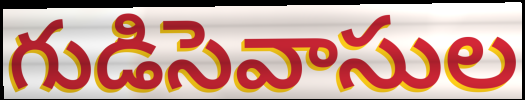
గుడిసెవాసుల